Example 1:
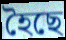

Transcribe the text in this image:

হৈছে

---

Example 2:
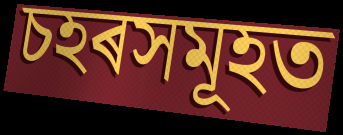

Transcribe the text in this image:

চহৰসমূহত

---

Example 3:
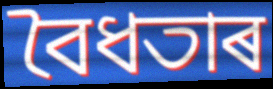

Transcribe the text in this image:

বৈধতাৰ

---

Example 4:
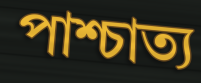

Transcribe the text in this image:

পাশ্চাত্য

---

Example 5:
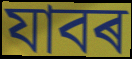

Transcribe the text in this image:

যাবৰ